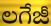
లగేజీ